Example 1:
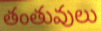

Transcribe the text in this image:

తంతువులు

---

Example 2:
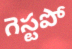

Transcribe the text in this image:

గెస్టపో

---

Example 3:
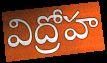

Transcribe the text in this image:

విద్రోహ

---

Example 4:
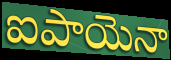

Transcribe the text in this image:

ఐపాయెనా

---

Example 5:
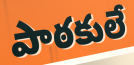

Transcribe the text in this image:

పాఠకులే